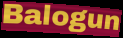
Balogun